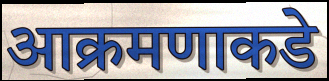
आक्रमणाकडे